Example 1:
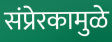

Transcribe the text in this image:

संप्रेरकामुळे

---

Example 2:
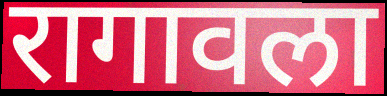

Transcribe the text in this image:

रागावला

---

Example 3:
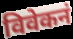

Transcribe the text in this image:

विवेकनं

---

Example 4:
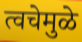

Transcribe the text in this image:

त्वचेमुळे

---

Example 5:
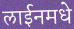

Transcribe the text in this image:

लाईनमधे